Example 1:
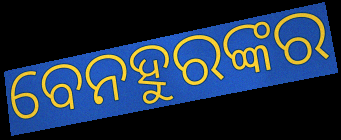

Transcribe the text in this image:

ବେନହୁରଙ୍କର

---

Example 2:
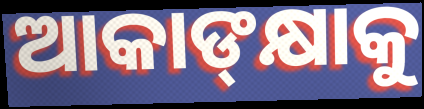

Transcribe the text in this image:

ଆକାଙ୍‍କ୍ଷାକୁ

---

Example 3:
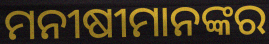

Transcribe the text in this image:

ମନୀଷୀମାନଙ୍କର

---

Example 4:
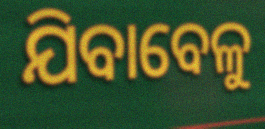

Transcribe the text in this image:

ଯିବାବେଳୁ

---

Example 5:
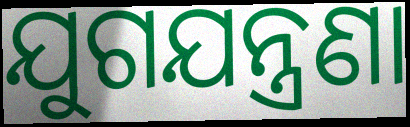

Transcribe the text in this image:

ଯୁଗଯନ୍ତ୍ରଣା